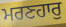
ਮਰਣਹਾਰੁ